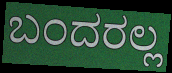
ಬಂದರಲ್ಲ